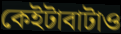
কেইটাবাটাও